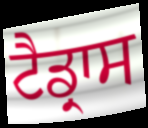
ਟੈਡ੍ਰਾਸ